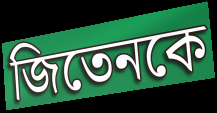
জিতেনকে